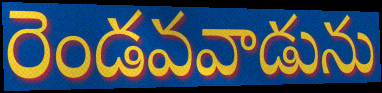
రెండవవాడును